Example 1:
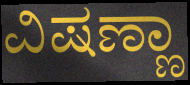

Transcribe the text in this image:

ವಿಷಣ್ಣಾ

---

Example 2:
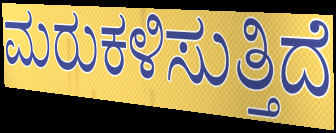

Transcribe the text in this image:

ಮರುಕಳಿಸುತ್ತಿದೆ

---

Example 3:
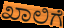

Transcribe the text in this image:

ಖಾಲಿಗೆ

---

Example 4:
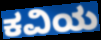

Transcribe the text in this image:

ಕವಿಯ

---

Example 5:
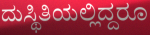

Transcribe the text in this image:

ದುಸ್ಥಿತಿಯಲ್ಲಿದ್ದರೂ